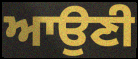
ਆਉਣੀ